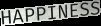
HAPPINESS